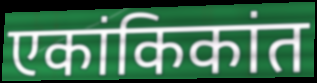
एकांकिकांत